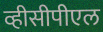
व्हीसीपीएल